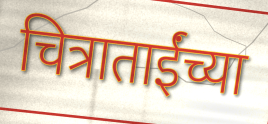
चित्राताईंच्या